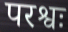
परश्वः